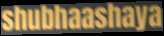
shubhaashaya